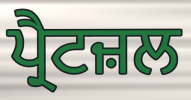
ਪ੍ਰੈਟਜ਼ਲ